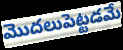
మొదలుపెట్టడమే